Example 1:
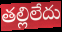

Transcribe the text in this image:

తల్లిలేదు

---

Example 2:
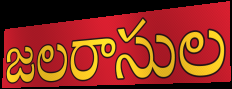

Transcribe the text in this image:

జలరాసుల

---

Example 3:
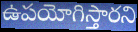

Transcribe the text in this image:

ఉపయోగిస్తారని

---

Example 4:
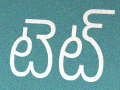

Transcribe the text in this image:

టెట్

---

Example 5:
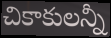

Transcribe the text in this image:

చికాకులన్నీ